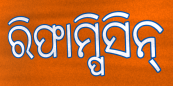
ରିଫାମ୍ପିସିନ୍